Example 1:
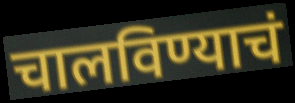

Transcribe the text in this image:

चालविण्याचं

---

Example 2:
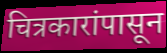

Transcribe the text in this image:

चित्रकारांपासून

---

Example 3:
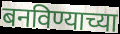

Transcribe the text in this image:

बनविण्याच्या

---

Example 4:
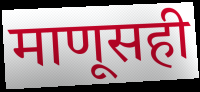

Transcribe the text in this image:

माणूसही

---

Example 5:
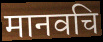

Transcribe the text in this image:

मानवचि